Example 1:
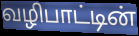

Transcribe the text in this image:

வழிபாட்டின்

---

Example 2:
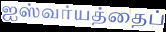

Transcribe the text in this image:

ஐஸ்வர்யத்தைப்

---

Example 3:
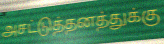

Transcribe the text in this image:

அசட்டுத்தனத்துக்கு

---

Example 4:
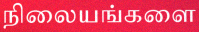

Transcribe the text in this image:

நிலையங்களை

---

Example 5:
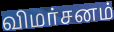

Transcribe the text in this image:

விமர்சனம்